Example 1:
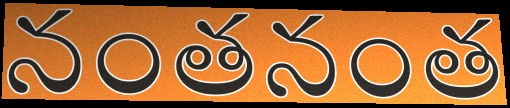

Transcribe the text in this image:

నంతనంత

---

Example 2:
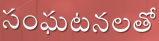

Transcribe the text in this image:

సంఘటనలతో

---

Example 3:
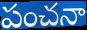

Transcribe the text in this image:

పంచనా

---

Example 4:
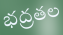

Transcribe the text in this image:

భద్రతల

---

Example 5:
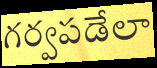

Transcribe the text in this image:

గర్వపడేలా